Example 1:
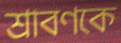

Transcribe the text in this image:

শ্রাবণকে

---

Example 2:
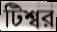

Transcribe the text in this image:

টিশ্বর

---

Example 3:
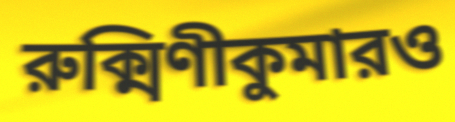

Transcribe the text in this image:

রুক্মিণীকুমারও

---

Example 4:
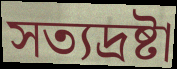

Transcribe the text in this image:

সত্যদ্রষ্টা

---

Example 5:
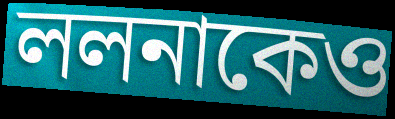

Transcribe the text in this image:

ললনাকেও